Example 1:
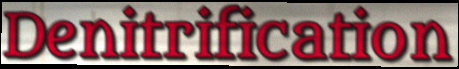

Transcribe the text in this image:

Denitrification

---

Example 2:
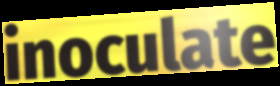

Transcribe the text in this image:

inoculate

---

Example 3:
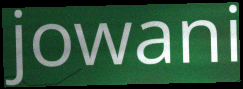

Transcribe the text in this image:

jowani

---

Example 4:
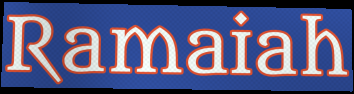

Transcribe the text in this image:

Ramaiah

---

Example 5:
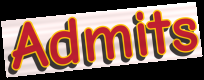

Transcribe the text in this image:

Admits